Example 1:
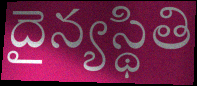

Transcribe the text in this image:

దైన్యస్థితి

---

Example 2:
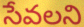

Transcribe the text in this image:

సేవలని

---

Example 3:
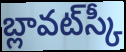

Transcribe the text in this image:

బ్లావట్‌స్కీ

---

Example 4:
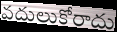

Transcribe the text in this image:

వదులుకోరాదు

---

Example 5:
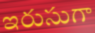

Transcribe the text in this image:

ఇరుసుగా